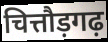
चित्तौड़गढ़